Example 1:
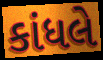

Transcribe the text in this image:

કાંધલે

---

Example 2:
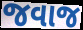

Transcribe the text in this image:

જવાજ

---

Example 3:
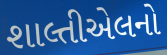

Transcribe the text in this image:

શાલ્તીએલનો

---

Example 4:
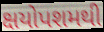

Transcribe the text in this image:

ક્ષયોપશમથી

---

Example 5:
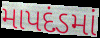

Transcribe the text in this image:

માપદંડમાં